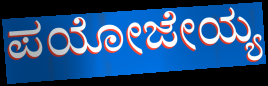
ಪಯೋಜೇಯ್ಯ